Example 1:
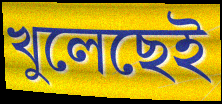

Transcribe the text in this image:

খুলেছেই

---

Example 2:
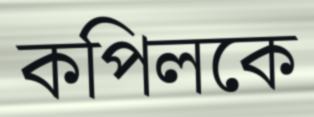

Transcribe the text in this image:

কপিলকে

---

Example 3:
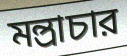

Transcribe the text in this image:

মন্ত্রাচার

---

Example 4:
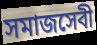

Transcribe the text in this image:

সমাজসেবী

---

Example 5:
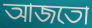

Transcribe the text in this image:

আজতো